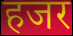
हजर